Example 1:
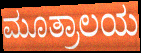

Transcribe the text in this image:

ಮೂತ್ರಾಲಯ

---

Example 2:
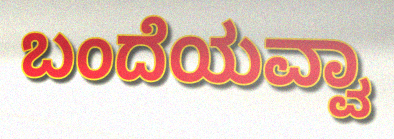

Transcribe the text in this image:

ಬಂದೆಯವ್ವಾ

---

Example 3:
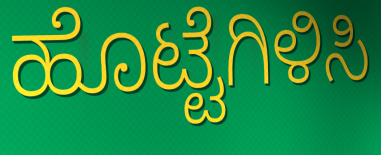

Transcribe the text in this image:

ಹೊಟ್ಟೆಗಿಳಿಸಿ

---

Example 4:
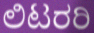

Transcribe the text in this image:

ಲಿಟರರಿ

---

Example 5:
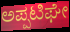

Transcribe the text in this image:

ಅಪ್ಪಟಿಘೇ